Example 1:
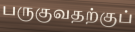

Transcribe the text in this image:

பருகுவதற்குப்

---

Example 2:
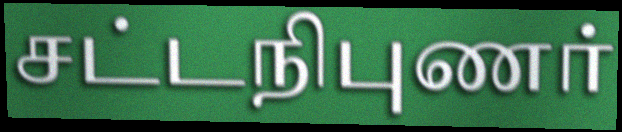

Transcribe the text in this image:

சட்டநிபுணர்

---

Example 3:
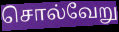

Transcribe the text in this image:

சொல்வேறு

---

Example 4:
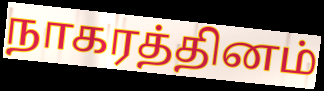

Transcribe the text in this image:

நாகரத்தினம்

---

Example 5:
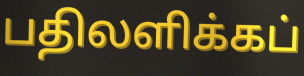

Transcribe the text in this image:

பதிலளிக்கப்